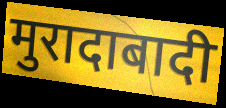
मुरादाबादी